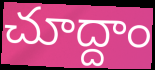
చూద్దాం